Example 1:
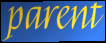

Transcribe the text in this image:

parent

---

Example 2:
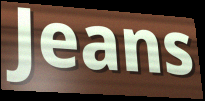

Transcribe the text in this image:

Jeans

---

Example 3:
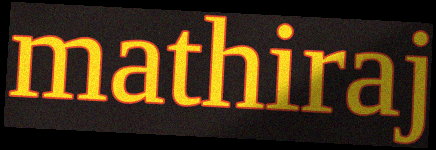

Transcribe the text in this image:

mathiraj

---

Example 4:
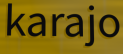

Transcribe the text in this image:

karajo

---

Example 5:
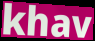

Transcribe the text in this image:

khav